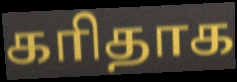
கரிதாக